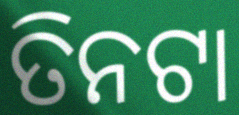
ତିନଟା